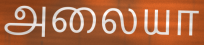
அலையா